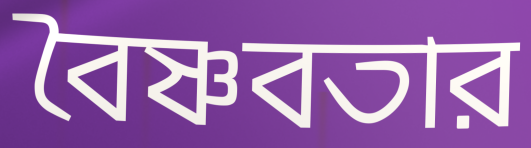
বৈষ্ণবতার